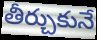
తీర్చుకునే